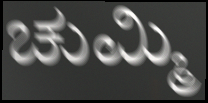
ಚುಮ್ಮಿ